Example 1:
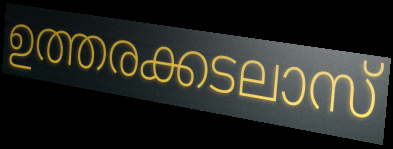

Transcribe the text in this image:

ഉത്തരക്കടലാസ്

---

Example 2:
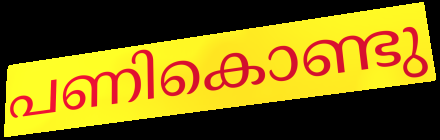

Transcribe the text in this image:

പണികൊണ്ടു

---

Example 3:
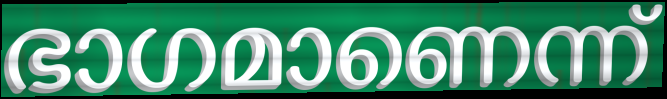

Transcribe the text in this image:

ഭാഗമാണെന്ന്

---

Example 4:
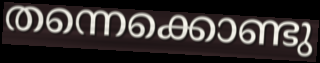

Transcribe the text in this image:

തന്നെക്കൊണ്ടു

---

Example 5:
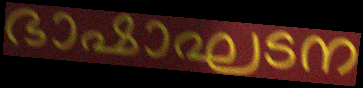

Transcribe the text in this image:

ഭാഷാഘടന